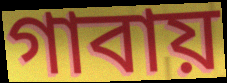
গাবায়